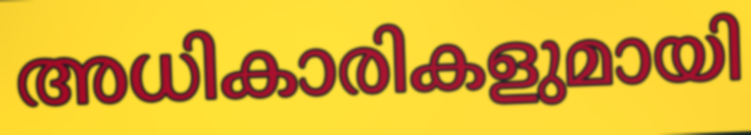
അധികാരികളുമായി